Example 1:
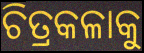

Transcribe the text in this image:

ଚିତ୍ରକଳାକୁ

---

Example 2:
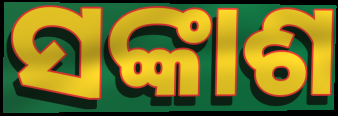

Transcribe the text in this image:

ସଙ୍କାଶ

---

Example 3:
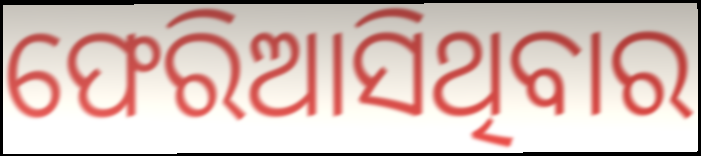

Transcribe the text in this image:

ଫେରିଆସିଥିବାର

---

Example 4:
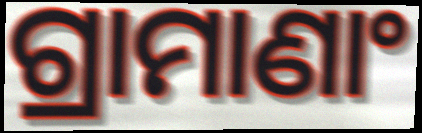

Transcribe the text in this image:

ଗ୍ରାମାଣାଂ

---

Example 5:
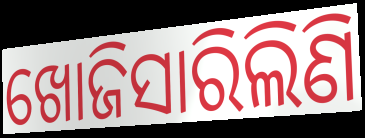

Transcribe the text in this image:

ଖୋଜିସାରିଲିଣି